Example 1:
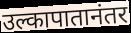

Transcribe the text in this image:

उल्कापातानंतर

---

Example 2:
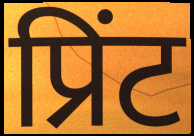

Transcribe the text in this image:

प्रिंट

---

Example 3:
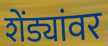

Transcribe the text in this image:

शेंड्यांवर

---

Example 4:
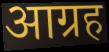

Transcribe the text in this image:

आग्रह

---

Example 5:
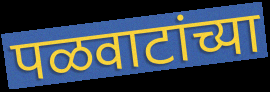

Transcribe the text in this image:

पळवाटांच्या